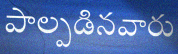
పాల్పడినవారు